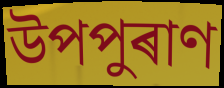
উপপুৰাণ